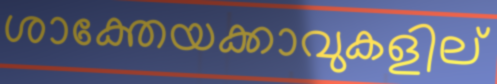
ശാക്തേയക്കാവുകളില്